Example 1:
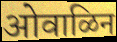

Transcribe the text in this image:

ओवाळिन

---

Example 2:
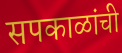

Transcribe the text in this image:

सपकाळांची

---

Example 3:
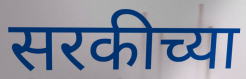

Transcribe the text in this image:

सरकीच्या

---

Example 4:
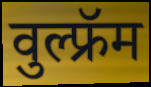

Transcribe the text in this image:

वुल्फ्रॅम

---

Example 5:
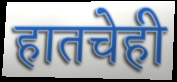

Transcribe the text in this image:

हातचेही